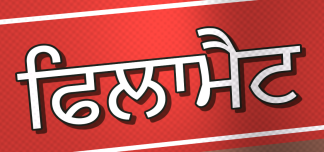
ਫਿਲਾਮੈਟ